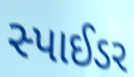
સ્પાઈડર